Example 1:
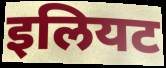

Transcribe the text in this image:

इलियट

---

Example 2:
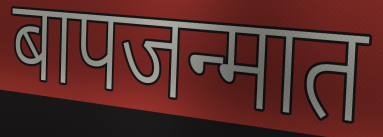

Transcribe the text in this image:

बापजन्मात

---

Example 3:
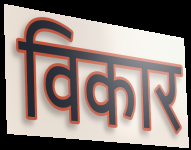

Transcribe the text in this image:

विकार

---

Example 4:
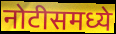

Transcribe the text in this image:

नोटीसमध्ये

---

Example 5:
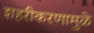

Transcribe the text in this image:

शहरीकरणामुळे